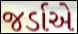
જર્ડાએ